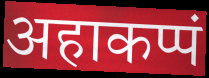
अहाकप्पं